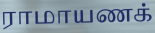
ராமாயணக்